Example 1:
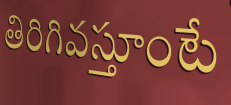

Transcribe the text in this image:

తిరిగివస్తూంటే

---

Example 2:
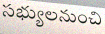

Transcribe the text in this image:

సభ్యులనుంచి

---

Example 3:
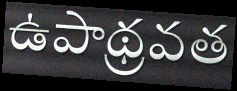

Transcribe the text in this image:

ఉపాథ్రవత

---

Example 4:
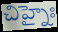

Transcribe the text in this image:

చిహ్నైః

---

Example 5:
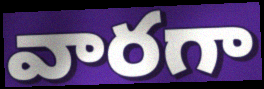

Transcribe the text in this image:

వారగా